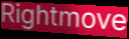
Rightmove